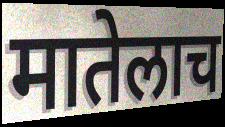
मातेलाच